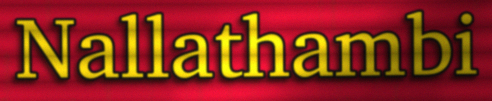
Nallathambi